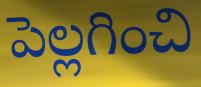
పెల్లగించి